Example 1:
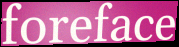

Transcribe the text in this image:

foreface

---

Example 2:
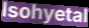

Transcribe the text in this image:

Isohyetal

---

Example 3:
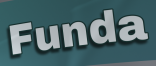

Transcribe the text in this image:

Funda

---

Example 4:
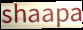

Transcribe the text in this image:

shaapa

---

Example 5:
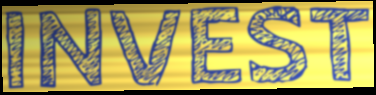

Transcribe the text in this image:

INVEST